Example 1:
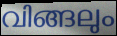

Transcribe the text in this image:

വിങ്ങലും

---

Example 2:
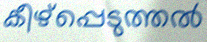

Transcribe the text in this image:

കീഴ്പ്പെടുത്തൽ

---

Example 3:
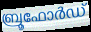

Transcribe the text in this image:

ബ്രൂഫോർഡ്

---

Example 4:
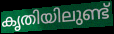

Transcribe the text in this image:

കൃതിയിലുണ്ട്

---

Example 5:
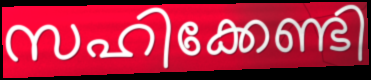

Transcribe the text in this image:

സഹിക്കേണ്ടി